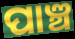
ପାଞ୍ଚ